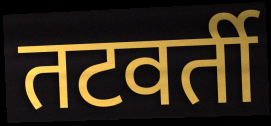
तटवर्ती